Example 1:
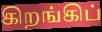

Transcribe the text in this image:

கிறங்கிப்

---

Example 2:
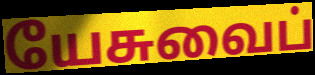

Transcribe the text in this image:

யேசுவைப்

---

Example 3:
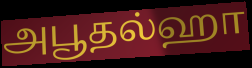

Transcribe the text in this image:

அபூதல்ஹா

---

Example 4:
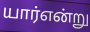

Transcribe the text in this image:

யார்என்று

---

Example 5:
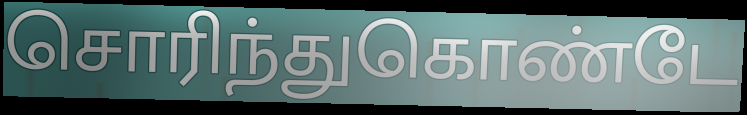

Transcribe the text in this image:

சொரிந்துகொண்டே